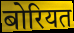
बोरियत